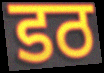
डठ